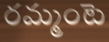
రమ్మంటె